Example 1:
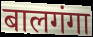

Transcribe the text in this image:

बालगंगा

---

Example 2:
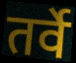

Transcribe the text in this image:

तर्वे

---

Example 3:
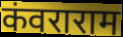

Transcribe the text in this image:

कंवराराम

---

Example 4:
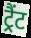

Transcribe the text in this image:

ट्रैंट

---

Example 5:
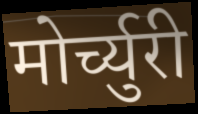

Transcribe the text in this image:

मोर्च्युरी